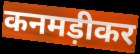
कनमड़ीकर